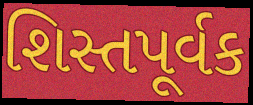
શિસ્તપૂર્વક